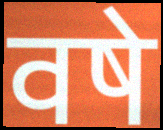
वषे